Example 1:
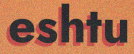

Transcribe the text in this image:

eshtu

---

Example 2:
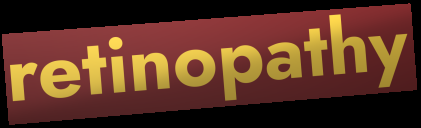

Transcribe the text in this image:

retinopathy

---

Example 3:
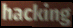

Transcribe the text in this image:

hacking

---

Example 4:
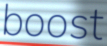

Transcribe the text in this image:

boost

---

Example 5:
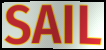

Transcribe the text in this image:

SAIL